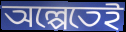
অল্পেতেই